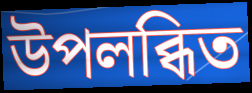
উপলব্ধিত